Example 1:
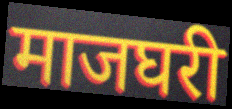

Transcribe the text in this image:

माजघरी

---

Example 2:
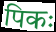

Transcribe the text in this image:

पिकः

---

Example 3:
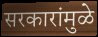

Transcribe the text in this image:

सरकारांमुळे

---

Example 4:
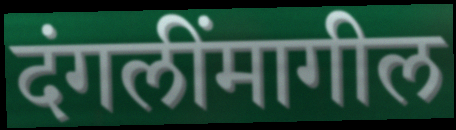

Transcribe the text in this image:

दंगलींमागील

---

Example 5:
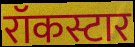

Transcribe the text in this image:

रॉकस्टार